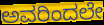
ಅವರಿಂದಲೇ